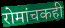
रोमांचकही